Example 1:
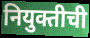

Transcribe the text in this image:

नियुक्तीची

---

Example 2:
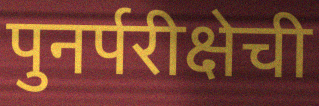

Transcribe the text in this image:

पुनर्परीक्षेची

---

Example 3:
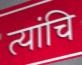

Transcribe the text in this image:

त्यांचि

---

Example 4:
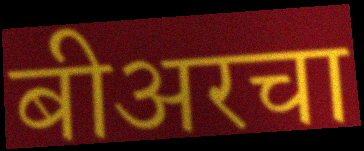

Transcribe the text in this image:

बीअरचा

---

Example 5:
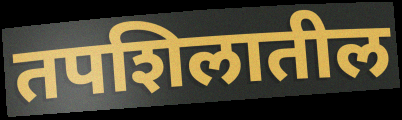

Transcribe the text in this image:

तपशिलातील